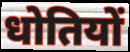
धोतियों